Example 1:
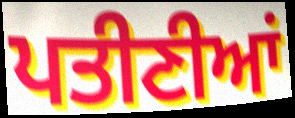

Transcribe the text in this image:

ਪਤੀਣੀਆਂ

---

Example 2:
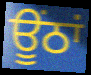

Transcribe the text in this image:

ਊਂਠਾਂ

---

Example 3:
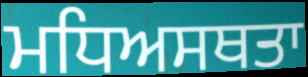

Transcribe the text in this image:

ਮਧਿਅਸਥਤਾ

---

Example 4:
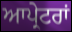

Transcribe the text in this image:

ਆਪ੍ਰੇਟਰਾਂ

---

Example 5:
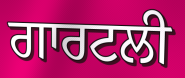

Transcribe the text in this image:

ਗਾਰਟਲੀ